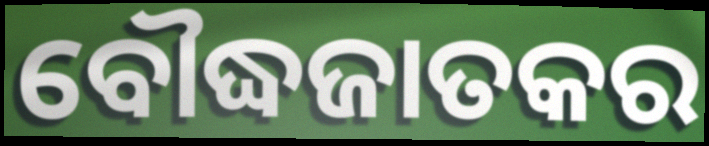
ବୌଦ୍ଧଜାତକର